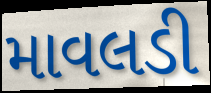
માવલડી